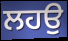
ਲਹਉ